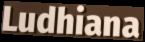
Ludhiana